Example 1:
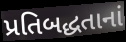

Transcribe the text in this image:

પ્રતિબદ્ધતાનાં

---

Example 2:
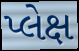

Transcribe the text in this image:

પ્લેક્ષ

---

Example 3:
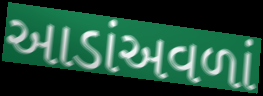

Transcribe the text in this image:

આડાંઅવળાં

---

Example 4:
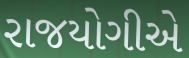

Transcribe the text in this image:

રાજયોગીએ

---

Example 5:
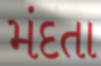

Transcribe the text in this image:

મંદતા